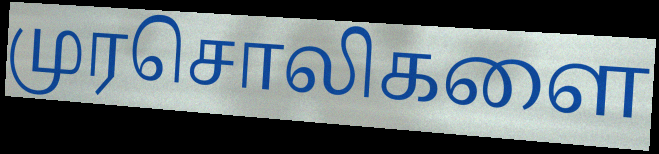
முரசொலிகளை